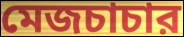
মেজচাচার